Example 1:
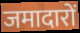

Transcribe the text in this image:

जमादारों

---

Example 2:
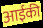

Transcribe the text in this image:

आईकी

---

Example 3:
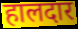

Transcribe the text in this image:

हालदार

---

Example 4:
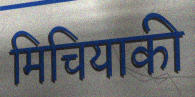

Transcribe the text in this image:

मिचियाकी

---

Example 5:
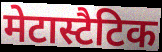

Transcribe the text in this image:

मेटास्टैटिक